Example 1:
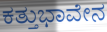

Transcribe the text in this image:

ಕತ್ತುಭಾವೇನ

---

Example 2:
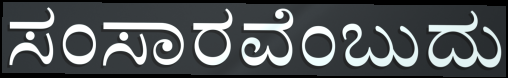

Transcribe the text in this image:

ಸಂಸಾರವೆಂಬುದು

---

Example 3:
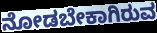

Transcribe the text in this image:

ನೋಡಬೇಕಾಗಿರುವ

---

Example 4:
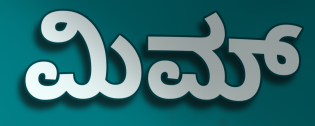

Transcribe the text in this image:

ಮಿಮ್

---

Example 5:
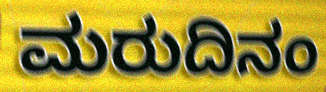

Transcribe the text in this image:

ಮರುದಿನಂ